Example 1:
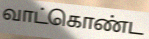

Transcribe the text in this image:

வாட்கொண்ட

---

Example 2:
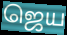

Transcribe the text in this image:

ஜெய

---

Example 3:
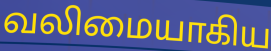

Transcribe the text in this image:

வலிமையாகிய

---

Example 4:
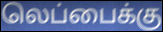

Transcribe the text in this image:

லெப்பைக்கு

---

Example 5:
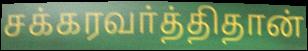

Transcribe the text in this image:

சக்கரவர்த்திதான்